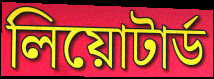
লিয়োটার্ড